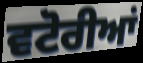
ਵਟੋਰੀਆਂ